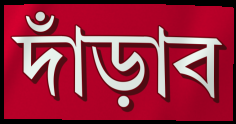
দাঁড়াব